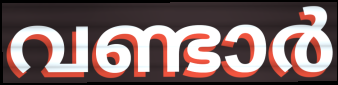
വണ്ടാർ